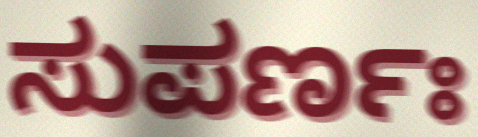
ಸುಪರ್ಣಃ